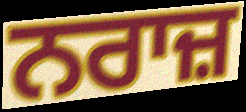
ਨਰਾਜ਼